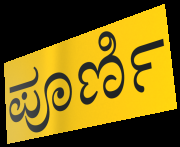
ಪೂರ್ಣಿ